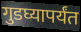
गुडघ्यापर्यंत